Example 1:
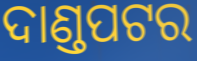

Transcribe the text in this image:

ଦାଣ୍ଡପଟର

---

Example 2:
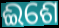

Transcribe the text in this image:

ଈଶେ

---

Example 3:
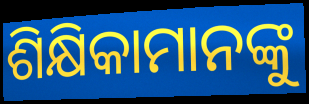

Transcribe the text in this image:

ଶିକ୍ଷିକାମାନଙ୍କୁ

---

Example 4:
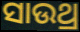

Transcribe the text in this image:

ସାଉଥ୍ର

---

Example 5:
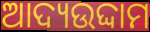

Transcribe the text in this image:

ଆଦ୍ୟଉଦ୍ଦାମ